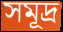
সমূদ্র